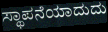
ಸ್ಥಾಪನೆಯಾದುದು